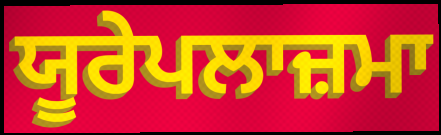
ਯੂਰੇਪਲਾਜ਼ਮਾ